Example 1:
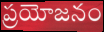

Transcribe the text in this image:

ప్రయోజనం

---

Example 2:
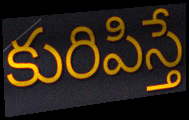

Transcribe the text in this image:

కురిపిస్తే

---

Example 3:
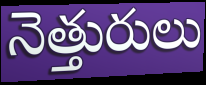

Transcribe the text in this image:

నెత్తురులు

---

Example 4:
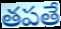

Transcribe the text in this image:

తపతే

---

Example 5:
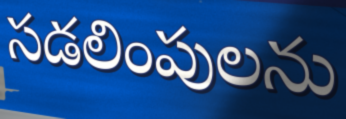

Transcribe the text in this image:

సడలింపులను